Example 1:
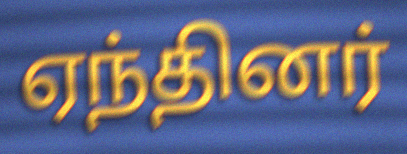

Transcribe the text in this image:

ஏந்தினர்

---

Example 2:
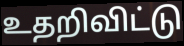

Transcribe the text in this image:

உதறிவிட்டு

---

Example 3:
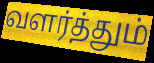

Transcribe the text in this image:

வளர்த்தும்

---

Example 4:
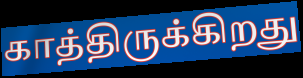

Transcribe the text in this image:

காத்திருக்கிறது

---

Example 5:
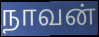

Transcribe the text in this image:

நாவன்